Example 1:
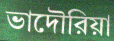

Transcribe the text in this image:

ভাদৌরিয়া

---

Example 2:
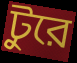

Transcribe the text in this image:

টুরে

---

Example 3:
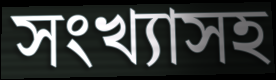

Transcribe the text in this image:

সংখ্যাসহ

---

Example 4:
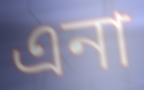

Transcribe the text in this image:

এনা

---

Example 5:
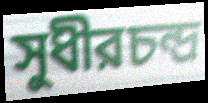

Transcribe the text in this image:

সুধীরচন্দ্র